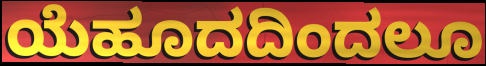
ಯೆಹೂದದಿಂದಲೂ